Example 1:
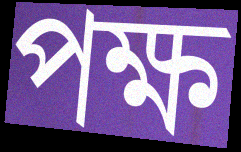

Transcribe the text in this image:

পক্ষ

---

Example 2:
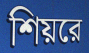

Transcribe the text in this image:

শিয়রে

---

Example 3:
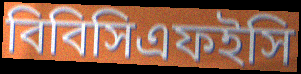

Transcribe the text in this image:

বিবিসিএফইসি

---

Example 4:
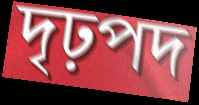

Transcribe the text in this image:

দৃঢ়পদ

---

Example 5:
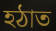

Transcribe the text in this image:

হঠাত